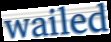
wailed